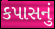
કપાસનું